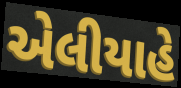
એલીયાહે